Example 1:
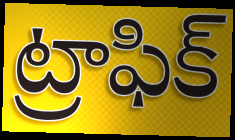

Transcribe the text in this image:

ట్రాఫిక్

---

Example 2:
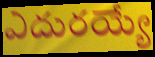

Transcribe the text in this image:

ఎదురయ్యే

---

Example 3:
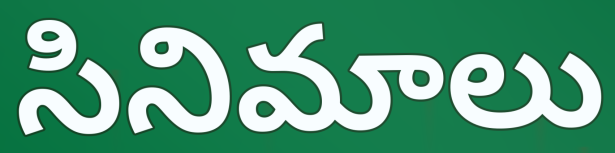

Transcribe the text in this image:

సినిమాలు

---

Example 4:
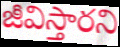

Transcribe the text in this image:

జీవిస్తారని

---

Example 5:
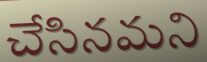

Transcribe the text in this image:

చేసినమని